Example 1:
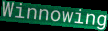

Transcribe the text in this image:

Winnowing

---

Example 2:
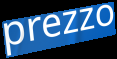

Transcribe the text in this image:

prezzo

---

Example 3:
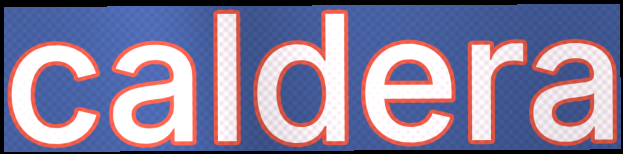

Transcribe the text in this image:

caldera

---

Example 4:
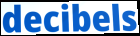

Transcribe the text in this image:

decibels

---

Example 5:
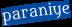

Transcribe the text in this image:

paraniye